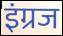
इंग्रज